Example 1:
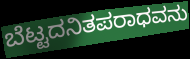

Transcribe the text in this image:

ಬೆಟ್ಟದನಿತಪರಾಧವನು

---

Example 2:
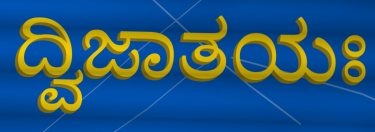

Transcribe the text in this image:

ದ್ವಿಜಾತಯಃ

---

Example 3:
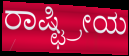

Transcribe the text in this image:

ರಾಷ್ಟ್ರೀಯ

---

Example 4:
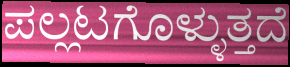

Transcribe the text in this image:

ಪಲ್ಲಟಗೊಳ್ಳುತ್ತದೆ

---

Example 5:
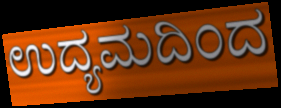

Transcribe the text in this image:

ಉದ್ಯಮದಿಂದ